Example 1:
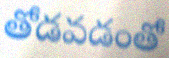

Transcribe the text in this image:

తోడవడంతో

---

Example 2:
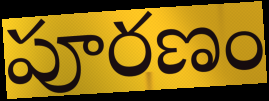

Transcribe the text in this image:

పూరణం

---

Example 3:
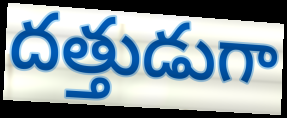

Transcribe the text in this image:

దత్తుడుగా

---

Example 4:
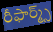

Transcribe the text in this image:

రీఫార్మ్స్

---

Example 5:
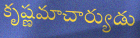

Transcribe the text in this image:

కృష్ణమాచార్యుడు